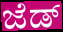
ಜೆಡ್